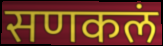
सणकलं